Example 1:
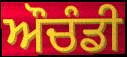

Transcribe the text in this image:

ਔਚੰਡੀ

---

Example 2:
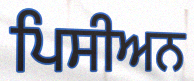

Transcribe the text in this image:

ਪਿਸੀਅਨ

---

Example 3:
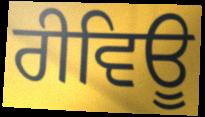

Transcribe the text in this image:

ਰੀਵਿਊ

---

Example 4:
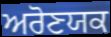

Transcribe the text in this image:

ਅਰੋਣਯਕ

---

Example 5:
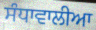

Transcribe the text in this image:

ਸੰਧਾਵਾਲੀਆ